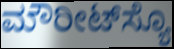
ಮೌರೀಟ್‌ಸ್ಯೊ